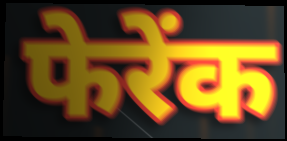
फेरेंक